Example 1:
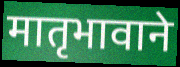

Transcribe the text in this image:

मातृभावाने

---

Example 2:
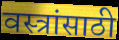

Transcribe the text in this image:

वस्त्रांसाठी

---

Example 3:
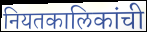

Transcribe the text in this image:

नियतकालिकांची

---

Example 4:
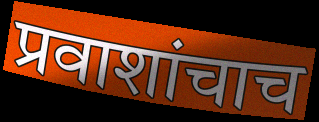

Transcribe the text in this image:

प्रवाशांचाच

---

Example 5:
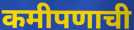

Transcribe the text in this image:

कमीपणाची